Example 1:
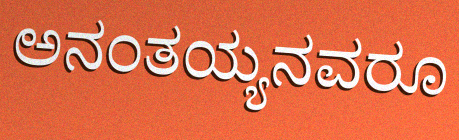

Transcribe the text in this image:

ಅನಂತಯ್ಯನವರೂ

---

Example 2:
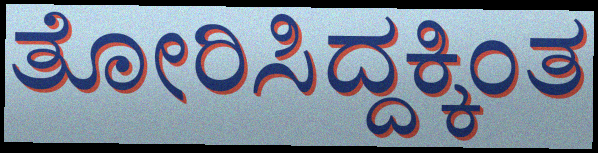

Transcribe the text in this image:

ತೋರಿಸಿದ್ದಕ್ಕಿಂತ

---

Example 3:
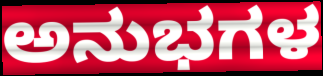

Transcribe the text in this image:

ಅನುಭಗಳ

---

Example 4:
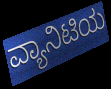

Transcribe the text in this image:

ವ್ಯಾನಿಟಿಯ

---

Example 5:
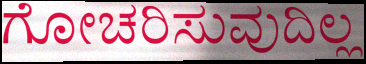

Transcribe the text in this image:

ಗೋಚರಿಸುವುದಿಲ್ಲ